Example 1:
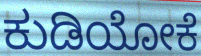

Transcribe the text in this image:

ಕುಡಿಯೋಕೆ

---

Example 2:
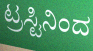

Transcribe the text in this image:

ಟ್ರಸ್ಟಿನಿಂದ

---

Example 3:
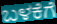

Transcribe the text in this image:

ಬಳಕೆಗೆ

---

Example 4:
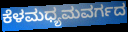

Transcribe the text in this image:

ಕೆಳಮಧ್ಯಮವರ್ಗದ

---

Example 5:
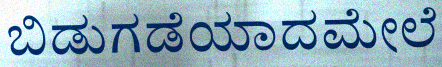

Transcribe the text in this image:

ಬಿಡುಗಡೆಯಾದಮೇಲೆ